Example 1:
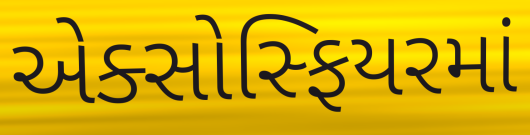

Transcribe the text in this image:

એક્સોસ્ફિયરમાં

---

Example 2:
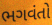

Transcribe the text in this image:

ભગવંતો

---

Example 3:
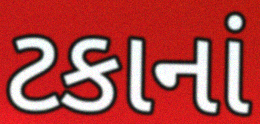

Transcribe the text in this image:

ટકાનાં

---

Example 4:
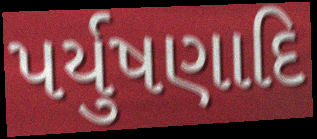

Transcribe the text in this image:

પર્યુષણાદિ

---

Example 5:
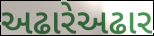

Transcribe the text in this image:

અઢારેઅઢાર